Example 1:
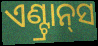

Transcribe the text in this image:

ଏଣ୍ଟ୍ରାନ୍‌ସ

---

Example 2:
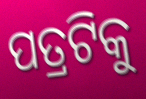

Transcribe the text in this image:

ପତ୍ରଟିକୁ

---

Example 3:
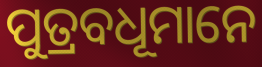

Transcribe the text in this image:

ପୁତ୍ରବଧୂମାନେ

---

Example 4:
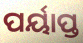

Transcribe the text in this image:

ପର୍ୟାପ୍ତ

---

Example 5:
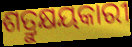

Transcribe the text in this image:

ଶତ୍ରୁକ୍ଷୟକାରୀ